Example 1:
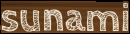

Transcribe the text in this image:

sunami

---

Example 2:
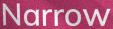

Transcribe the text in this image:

Narrow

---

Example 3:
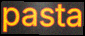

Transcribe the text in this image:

pasta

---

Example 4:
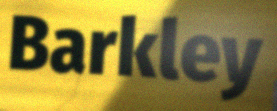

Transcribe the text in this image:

Barkley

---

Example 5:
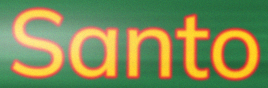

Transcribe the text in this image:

Santo